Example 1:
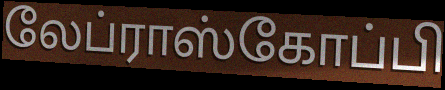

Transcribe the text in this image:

லேப்ராஸ்கோப்பி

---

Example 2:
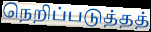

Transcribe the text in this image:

நெறிப்படுத்தத்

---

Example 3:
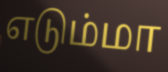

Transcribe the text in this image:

எடும்மா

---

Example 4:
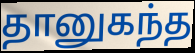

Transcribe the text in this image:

தானுகந்த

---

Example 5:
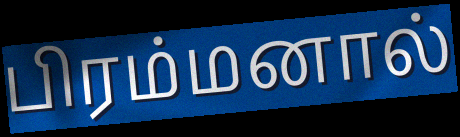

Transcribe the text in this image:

பிரம்மனால்